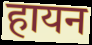
हायन